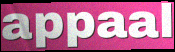
appaal